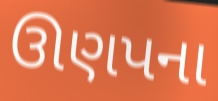
ઊણપના